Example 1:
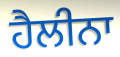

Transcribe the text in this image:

ਹੈਲੀਨਾ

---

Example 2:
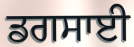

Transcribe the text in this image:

ਡਗਸਾਈ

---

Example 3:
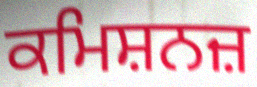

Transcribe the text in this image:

ਕਮਿਸ਼ਨਜ਼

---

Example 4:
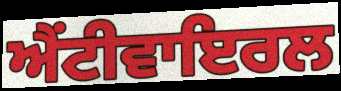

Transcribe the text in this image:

ਐਂਟੀਵਾਇਰਲ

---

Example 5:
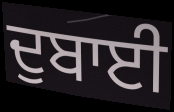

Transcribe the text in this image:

ਦੁਬਾਈ